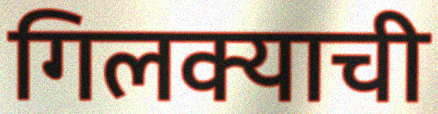
गिलक्याची